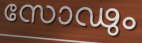
സോഢും